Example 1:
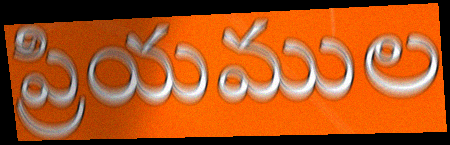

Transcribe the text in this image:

ప్రియముల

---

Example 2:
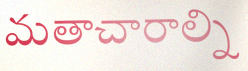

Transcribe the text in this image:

మతాచారాల్ని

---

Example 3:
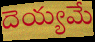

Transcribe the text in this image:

దెయ్యమే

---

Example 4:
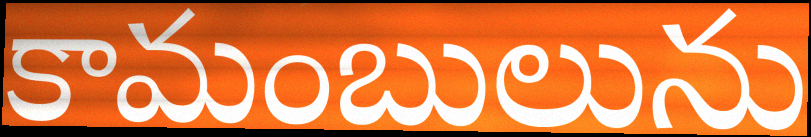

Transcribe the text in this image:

కామంబులును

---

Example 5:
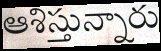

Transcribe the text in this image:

ఆశిస్తున్నారు